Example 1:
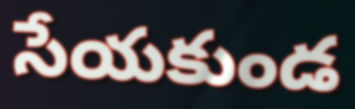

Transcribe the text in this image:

సేయకుండ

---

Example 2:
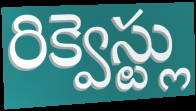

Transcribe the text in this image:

రిక్వెస్ట్లు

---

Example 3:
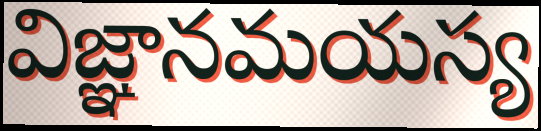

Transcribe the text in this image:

విజ్ఞానమయస్య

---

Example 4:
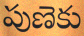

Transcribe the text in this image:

పుణెకు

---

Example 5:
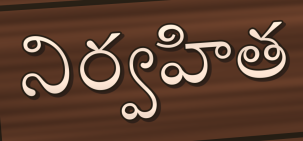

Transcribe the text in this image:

నిర్వహిత